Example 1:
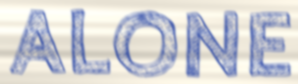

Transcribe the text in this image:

ALONE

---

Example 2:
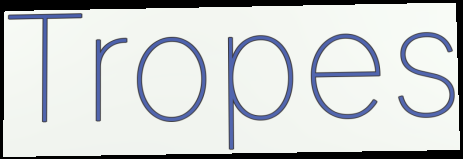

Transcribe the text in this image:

Tropes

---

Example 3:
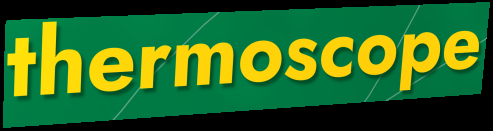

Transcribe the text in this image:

thermoscope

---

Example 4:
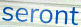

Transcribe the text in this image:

seront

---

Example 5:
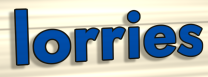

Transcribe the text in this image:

lorries